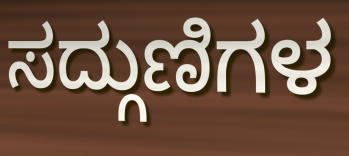
ಸದ್ಗುಣಿಗಳ